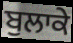
ਬੁਲਾਕੇ